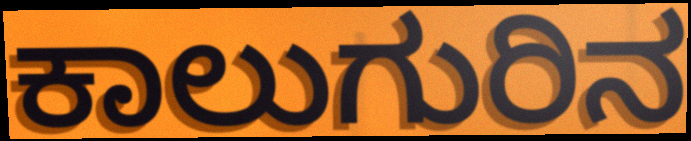
ಕಾಲುಗುರಿನ